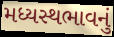
મધ્યસ્થભાવનું